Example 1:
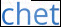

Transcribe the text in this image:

chet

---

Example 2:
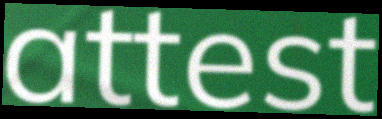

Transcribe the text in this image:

attest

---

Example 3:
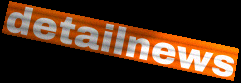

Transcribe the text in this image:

detailnews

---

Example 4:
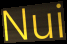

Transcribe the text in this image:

Nui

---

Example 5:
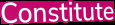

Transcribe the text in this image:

Constitute